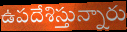
ఉపదేశిస్తున్నారు